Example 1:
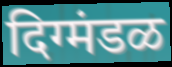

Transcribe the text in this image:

दिग्मंडळ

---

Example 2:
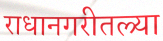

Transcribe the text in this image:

राधानगरीतल्या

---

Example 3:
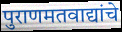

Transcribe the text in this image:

पुराणमतवाद्यांचे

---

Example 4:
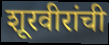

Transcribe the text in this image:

शूरवीरांची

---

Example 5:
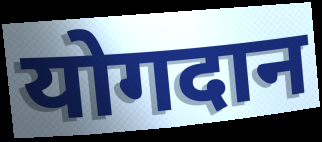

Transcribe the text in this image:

योगदान